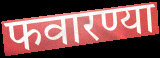
फवारण्या